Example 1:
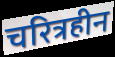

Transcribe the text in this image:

चरित्रहीन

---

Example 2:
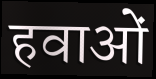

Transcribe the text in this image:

हवाओं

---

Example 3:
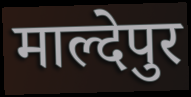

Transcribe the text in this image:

माल्देपुर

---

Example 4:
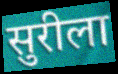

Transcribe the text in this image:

सुरीला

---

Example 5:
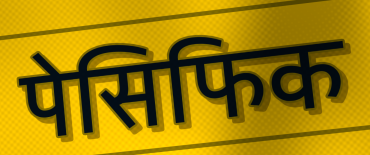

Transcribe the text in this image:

पेसिफिक